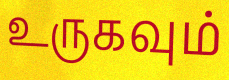
உருகவும்